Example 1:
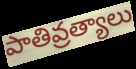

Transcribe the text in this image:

పాతివ్రత్యాలు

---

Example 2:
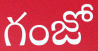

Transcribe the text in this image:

గంజో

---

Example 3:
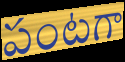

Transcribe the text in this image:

పంటగా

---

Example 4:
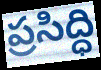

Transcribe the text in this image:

ప్రసిద్ధి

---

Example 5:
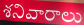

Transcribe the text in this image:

శనివారాలు